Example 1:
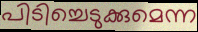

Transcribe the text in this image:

പിടിച്ചെടുക്കുമെന്ന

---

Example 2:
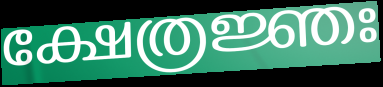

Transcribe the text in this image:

ക്ഷേത്രജ്ഞഃ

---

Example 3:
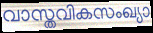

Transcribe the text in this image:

വാസ്തവികസംഖ്യാ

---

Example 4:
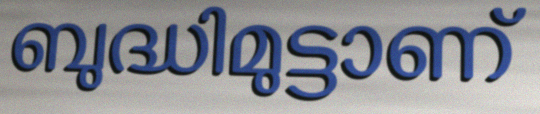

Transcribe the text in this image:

ബുദ്ധിമുട്ടാണ്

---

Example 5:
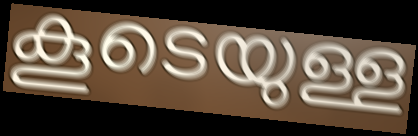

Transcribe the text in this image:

കൂടെയുള്ള